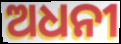
ଅଧନୀ